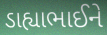
ડાહ્યાભાઈને